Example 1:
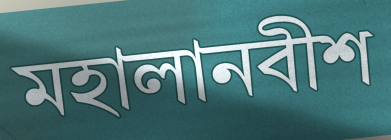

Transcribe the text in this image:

মহালানবীশ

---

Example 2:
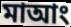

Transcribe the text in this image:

মাআং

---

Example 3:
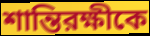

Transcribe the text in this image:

শান্তিরক্ষীকে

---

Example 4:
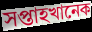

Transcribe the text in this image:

সপ্তাহখানেক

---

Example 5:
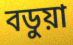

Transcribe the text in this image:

বডুয়া